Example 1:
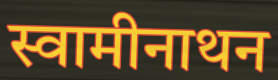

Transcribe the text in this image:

स्वामीनाथन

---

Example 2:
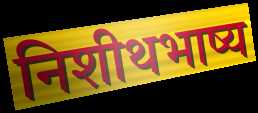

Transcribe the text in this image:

निशीथभाष्य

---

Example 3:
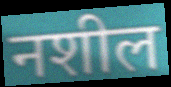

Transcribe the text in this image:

नशील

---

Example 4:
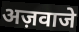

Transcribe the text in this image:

अज़वाजे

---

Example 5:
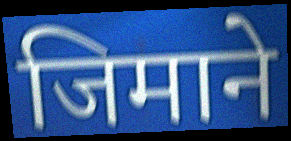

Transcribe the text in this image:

जिमाने